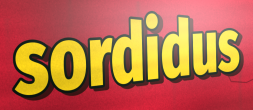
sordidus